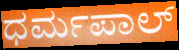
ಧರ್ಮಪಾಲ್